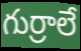
గుర్రాలే